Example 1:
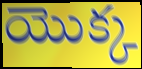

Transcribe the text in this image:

యొక్క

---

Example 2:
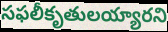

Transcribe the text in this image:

సఫలీకృతులయ్యారని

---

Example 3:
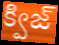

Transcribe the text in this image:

క్విజ్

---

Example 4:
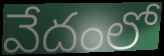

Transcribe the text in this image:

వేదంలో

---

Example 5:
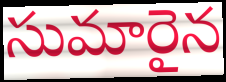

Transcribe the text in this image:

సుమారైన